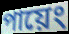
পায়েং